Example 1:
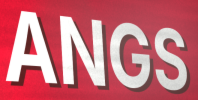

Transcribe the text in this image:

ANGS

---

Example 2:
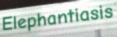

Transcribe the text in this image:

Elephantiasis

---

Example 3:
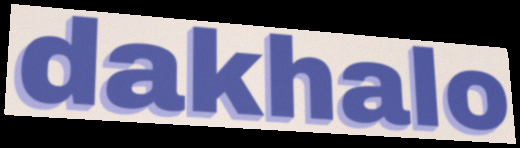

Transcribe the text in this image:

dakhalo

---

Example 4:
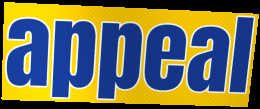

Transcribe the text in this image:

appeal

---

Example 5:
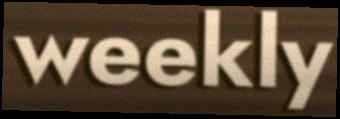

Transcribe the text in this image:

weekly